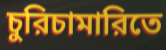
চুরিচামারিতে